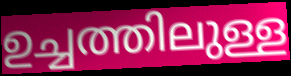
ഉച്ചത്തിലുള്ള